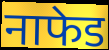
नाफेड